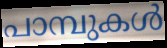
പാമ്പുകൾ